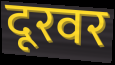
दूरवर